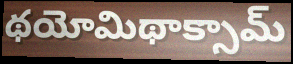
థయోమిథాక్సామ్